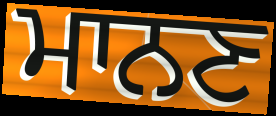
ਮਾਨਣ